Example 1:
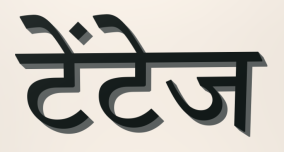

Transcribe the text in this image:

टेंटेज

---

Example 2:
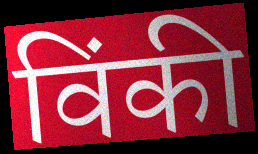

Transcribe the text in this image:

विंकी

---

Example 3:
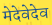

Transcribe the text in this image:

मेदेवेदेव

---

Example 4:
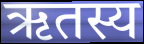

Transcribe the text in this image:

ॠतस्य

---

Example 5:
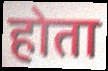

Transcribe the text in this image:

होता